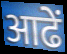
आढें